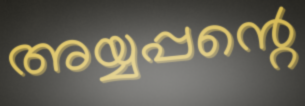
അയ്യപ്പന്റെ